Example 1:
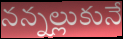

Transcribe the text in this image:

నన్నల్లుకునే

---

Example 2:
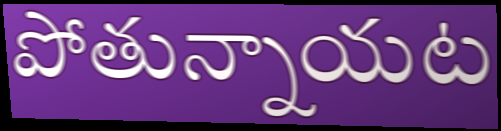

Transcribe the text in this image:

పోతున్నాయట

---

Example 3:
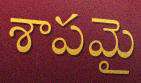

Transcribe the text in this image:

శాపమై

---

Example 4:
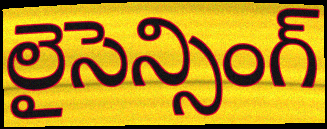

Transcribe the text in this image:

లైసెన్సింగ్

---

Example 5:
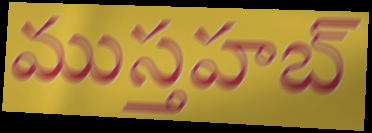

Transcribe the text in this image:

ముస్తహబ్